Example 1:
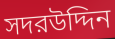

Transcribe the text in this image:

সদরউদ্দিন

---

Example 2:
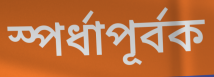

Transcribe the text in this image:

স্পর্ধাপূর্বক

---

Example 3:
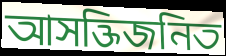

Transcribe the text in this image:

আসক্তিজনিত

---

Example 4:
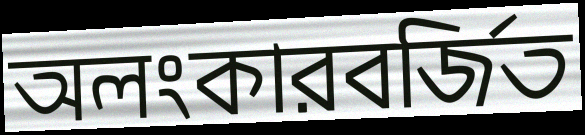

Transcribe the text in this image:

অলংকারবর্জিত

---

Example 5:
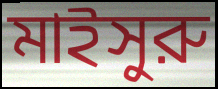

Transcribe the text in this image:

মাইসুরু